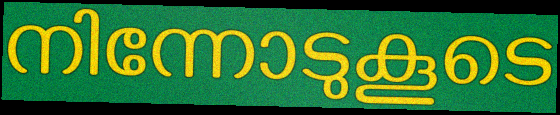
നിന്നോടുകൂടെ